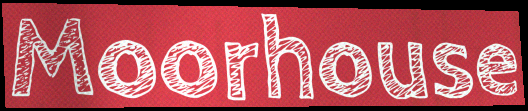
Moorhouse